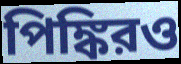
পিঙ্কিরও